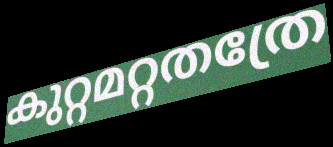
കുറ്റമറ്റതത്രേ